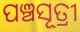
ପଞ୍ଚସୂତ୍ରୀ